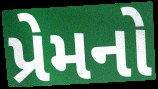
પ્રેમનો